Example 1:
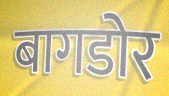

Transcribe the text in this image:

बागडोर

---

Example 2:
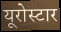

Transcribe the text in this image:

यूरोस्टार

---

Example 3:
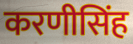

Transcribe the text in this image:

करणीसिंह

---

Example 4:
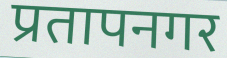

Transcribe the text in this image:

प्रतापनगर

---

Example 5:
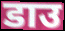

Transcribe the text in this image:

डाउ